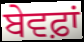
ਬੇਵਫ਼ਾਂ